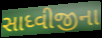
સાધ્વીજીના